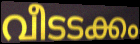
വീടടക്കം